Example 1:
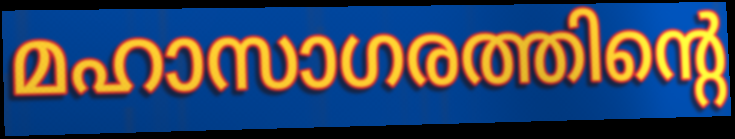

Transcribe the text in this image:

മഹാസാഗരത്തിന്റെ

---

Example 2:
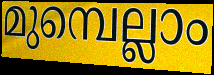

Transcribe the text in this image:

മുമ്പെല്ലാം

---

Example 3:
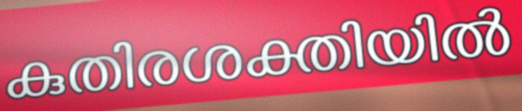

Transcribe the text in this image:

കുതിരശക്തിയിൽ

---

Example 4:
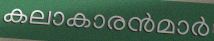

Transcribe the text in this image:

കലാകാരൻമാർ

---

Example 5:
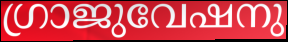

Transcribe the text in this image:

ഗ്രാജുവേഷനു